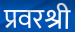
प्रवरश्री